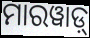
ମାରୱାଡ଼୍